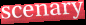
scenary